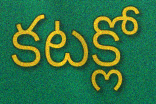
కటక్లో